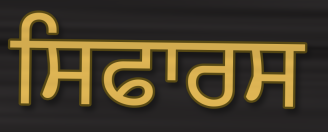
ਸਿਫਾਰਸ